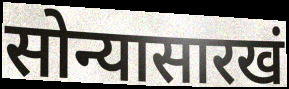
सोन्यासारखं